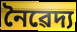
নৈৱেদ্য